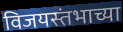
विजयस्तंभाच्या